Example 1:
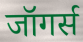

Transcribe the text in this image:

जॉगर्स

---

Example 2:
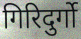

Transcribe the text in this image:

गिरिदुर्गो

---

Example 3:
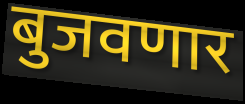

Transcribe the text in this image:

बुजवणार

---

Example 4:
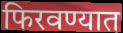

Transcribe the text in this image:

फिरवण्यात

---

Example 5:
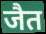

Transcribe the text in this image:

जैत